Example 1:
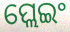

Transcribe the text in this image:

ପ୍ଲେଇଂ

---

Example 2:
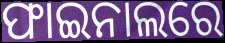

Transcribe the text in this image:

ଫାଇନାଲରେ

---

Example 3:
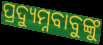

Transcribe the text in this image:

ପ୍ରଦ୍ୟୁମ୍ନବାବୁଙ୍କୁ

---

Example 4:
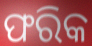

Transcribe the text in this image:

ଫରିକ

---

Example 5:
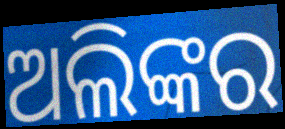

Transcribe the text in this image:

ଅଲିଙ୍କର